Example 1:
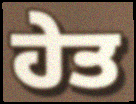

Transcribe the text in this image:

ਹੇਤ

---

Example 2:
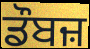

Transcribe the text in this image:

ਡੌਬਜ਼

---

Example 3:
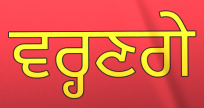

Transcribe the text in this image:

ਵਰ੍ਹਣਗੇ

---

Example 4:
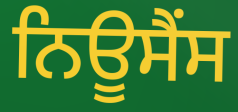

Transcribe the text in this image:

ਨਿਊਸੈਂਸ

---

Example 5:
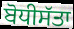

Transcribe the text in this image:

ਬੋਧੀਸੱਤਾ